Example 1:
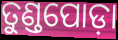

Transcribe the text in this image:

ତୁଣ୍ଡପୋଡ଼ା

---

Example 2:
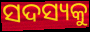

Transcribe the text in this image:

ସଦସ୍ୟକୁ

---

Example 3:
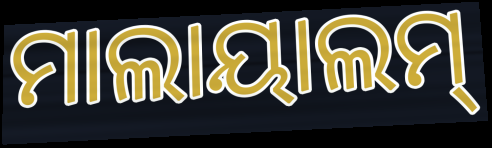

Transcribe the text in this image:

ମାଲାୟାଲମ୍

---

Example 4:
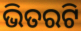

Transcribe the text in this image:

ଭିତରଟି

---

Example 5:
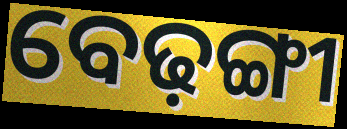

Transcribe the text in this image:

ବେଢ଼ଙ୍ଗୀ